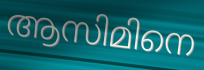
ആസിമിനെ